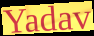
Yadav